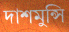
দাশমুন্সি